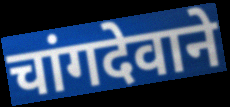
चांगदेवाने